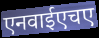
एनवाईएचए